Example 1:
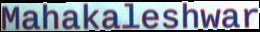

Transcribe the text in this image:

Mahakaleshwar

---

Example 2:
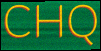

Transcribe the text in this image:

CHQ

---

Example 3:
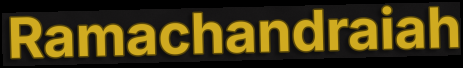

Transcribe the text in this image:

Ramachandraiah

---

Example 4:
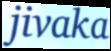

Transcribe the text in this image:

jivaka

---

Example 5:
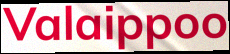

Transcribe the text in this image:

Valaippoo